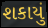
શકાયું